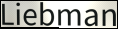
Liebman